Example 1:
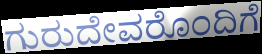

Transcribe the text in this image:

ಗುರುದೇವರೊಂದಿಗೆ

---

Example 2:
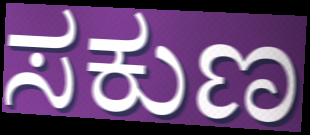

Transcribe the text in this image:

ಸಕುಣ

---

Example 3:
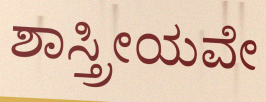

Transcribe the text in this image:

ಶಾಸ್ತ್ರೀಯವೇ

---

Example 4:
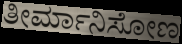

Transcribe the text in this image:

ತೀರ್ಮಾನಿಸೋಣ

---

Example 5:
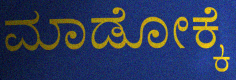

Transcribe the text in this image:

ಮಾಡೋಕ್ಕೆ